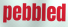
pebbled